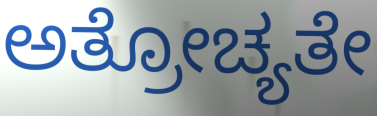
ಅತ್ರೋಚ್ಯತೇ